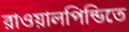
রাওয়ালপিন্ডিতে